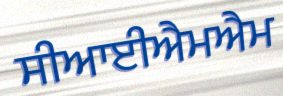
ਸੀਆਈਐਮਐਮ